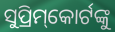
ସୁପ୍ରିମ୍‌କୋର୍ଟଙ୍କୁ